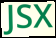
JSX